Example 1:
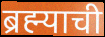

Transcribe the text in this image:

ब्रह्म्याची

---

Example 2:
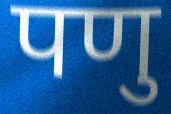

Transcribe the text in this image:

पणु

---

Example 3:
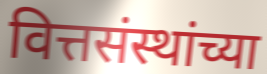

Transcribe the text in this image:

वित्तसंस्थांच्या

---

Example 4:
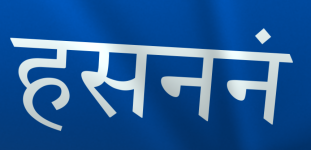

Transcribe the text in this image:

हसननं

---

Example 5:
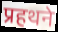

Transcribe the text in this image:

प्रहथने